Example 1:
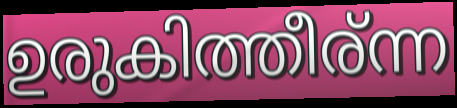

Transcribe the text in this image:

ഉരുകിത്തീര്ന്ന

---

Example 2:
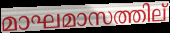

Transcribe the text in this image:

മാഘമാസത്തില്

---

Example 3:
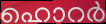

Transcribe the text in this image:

ഹൊറർ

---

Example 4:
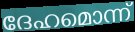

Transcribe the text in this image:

ദേഹമൊന്ന്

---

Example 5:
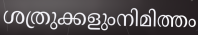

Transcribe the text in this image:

ശത്രുക്കളുംനിമിത്തം